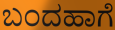
ಬಂದಹಾಗೆ